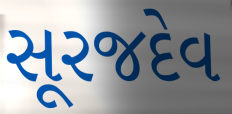
સૂરજદેવ